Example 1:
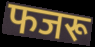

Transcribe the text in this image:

फजरू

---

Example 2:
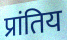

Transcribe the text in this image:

प्रांतिय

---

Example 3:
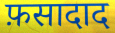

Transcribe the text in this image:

फ़सादाद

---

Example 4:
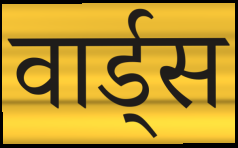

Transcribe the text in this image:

वार्ड्स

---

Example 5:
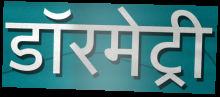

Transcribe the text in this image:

डॉरमेट्री